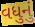
વધુનું